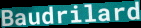
Baudrilard